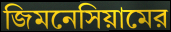
জিমনেসিয়ামের